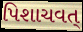
પિશાચવત્